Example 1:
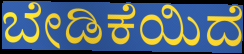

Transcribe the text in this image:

ಬೇಡಿಕೆಯಿದೆ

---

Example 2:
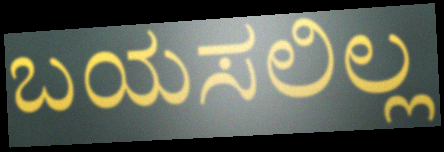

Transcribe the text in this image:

ಬಯಸಲಿಲ್ಲ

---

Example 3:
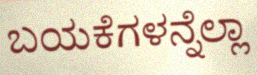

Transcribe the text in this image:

ಬಯಕೆಗಳನ್ನೆಲ್ಲಾ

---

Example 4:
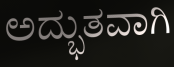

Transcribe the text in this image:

ಅದ್ಭುತವಾಗಿ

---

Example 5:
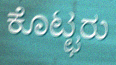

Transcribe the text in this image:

ಕೊಟ್ಟರು